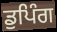
ਡੁਪਿੰਗ